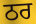
ਠਰ